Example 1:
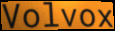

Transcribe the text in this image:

Volvox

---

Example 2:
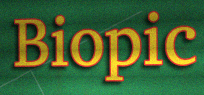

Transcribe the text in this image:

Biopic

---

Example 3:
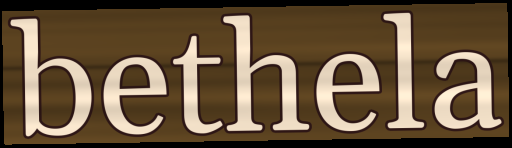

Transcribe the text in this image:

bethela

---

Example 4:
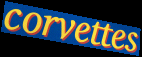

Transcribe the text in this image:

corvettes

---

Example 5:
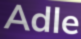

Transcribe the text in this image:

Adle